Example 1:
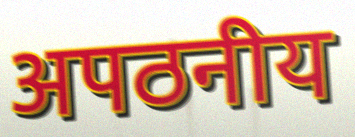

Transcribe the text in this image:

अपठनीय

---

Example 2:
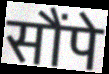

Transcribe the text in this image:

सौंपे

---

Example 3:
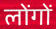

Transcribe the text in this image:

लोंगों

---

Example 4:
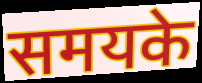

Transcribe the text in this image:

समयके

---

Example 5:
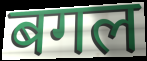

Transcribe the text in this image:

बगल